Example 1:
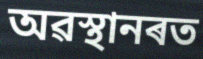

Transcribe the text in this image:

অৱস্থানৰত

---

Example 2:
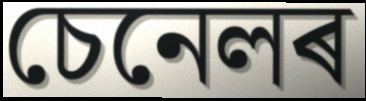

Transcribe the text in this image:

চেনেলৰ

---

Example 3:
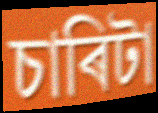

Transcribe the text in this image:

চাৰিটা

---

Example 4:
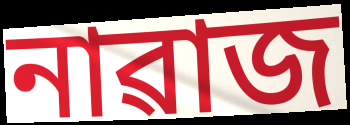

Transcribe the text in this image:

নাৱাজ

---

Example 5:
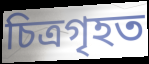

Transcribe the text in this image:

চিত্ৰগৃহত